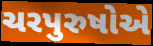
ચરપુરુષોએ